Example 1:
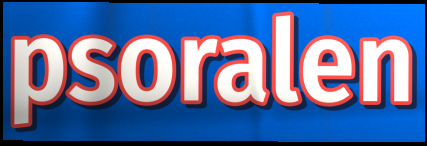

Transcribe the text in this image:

psoralen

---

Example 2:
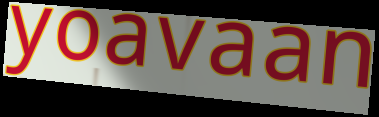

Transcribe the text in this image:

yoavaan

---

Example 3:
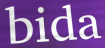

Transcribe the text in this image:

bida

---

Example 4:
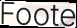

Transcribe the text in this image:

Foote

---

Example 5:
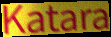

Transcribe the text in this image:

Katara